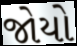
જોયો